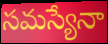
సమస్యేనా